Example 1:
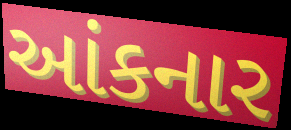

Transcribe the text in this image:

આંકનાર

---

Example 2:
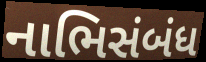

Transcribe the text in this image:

નાભિસંબંધ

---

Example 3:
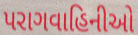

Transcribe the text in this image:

પરાગવાહિનીઓ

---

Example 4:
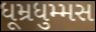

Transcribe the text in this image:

ધૂમ્રધુમ્મસ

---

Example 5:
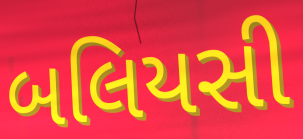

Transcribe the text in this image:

બલિયસી